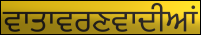
ਵਾਤਾਵਰਣਵਾਦੀਆਂ